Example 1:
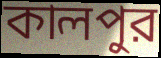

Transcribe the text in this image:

কালপুর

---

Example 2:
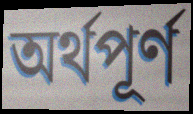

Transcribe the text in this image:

অর্থপূর্ণ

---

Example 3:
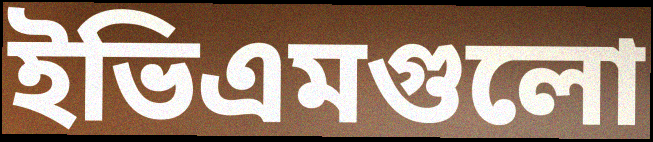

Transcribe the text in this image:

ইভিএমগুলো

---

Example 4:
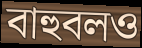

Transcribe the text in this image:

বাহুবলও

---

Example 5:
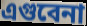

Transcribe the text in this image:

এগুবেনা